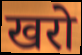
खरो